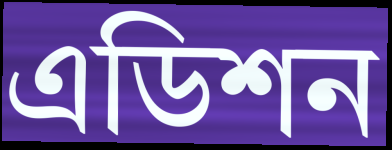
এডিশন